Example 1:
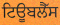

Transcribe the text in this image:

ਟਿਊਬਲੈੱਸ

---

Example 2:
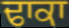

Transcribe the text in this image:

ਢਾਕਾ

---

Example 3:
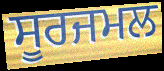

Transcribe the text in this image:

ਸੂਰਜਮਲ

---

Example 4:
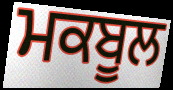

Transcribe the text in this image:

ਮਕਬੂਲ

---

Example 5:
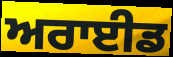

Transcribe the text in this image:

ਅਰਾਈਡ